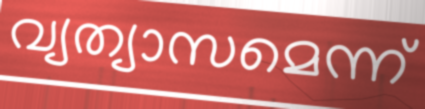
വ്യത്യാസമെന്ന്